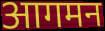
आगमन